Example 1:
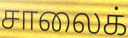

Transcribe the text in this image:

சாலைக்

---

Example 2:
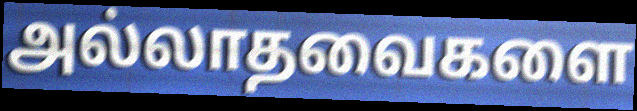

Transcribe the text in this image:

அல்லாதவைகளை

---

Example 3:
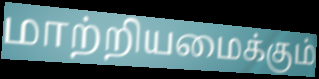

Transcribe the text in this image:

மாற்றியமைக்கும்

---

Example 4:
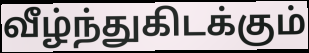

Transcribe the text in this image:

வீழ்ந்துகிடக்கும்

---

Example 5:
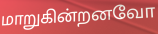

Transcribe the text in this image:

மாறுகின்றனவோ